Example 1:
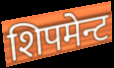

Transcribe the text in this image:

शिपमेन्ट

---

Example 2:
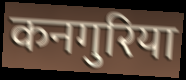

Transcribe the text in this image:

कनगुरिया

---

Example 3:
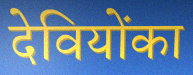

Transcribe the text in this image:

देवियोंका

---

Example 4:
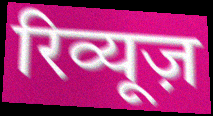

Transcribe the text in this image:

रिव्यूज़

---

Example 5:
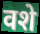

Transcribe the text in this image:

वशे